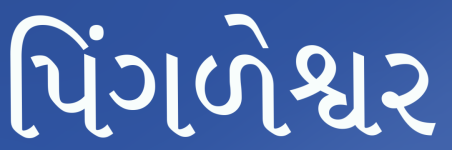
પિંગળેશ્વર